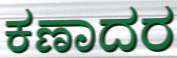
ಕಣಾದರ